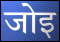
जोइ